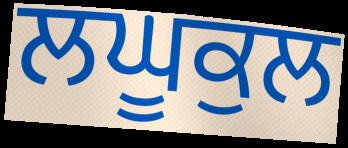
ਲਘੂਕੁਲ